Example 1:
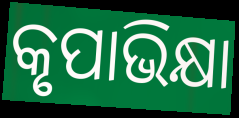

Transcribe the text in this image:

କୃପାଭିକ୍ଷା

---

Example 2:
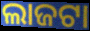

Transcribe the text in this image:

ଲାଜଟା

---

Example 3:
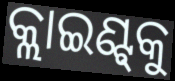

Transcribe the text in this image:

କ୍ଲାଇଣ୍ଟ୍‌କୁ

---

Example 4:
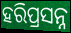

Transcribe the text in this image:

ହରିପ୍ରସନ୍ନ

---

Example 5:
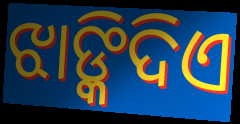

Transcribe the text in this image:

ଝାଙ୍କିଦିଏ